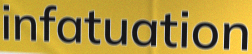
infatuation